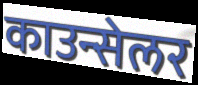
काउन्सेलर